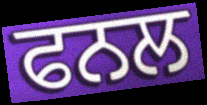
ਫਨਲ